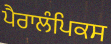
ਪੈਰਾਲੰਪਿਕਸ